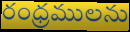
రంధ్రములను